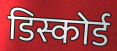
डिस्कोर्ड